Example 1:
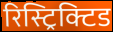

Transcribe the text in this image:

रिस्ट्रिक्टिड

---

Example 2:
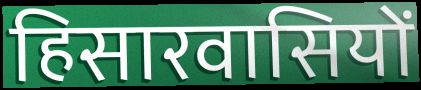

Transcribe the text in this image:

हिसारवासियों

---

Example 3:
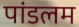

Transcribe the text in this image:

पांडलम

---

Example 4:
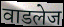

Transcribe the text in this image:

वाडलेज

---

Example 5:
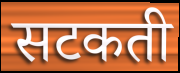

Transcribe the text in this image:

सटकती